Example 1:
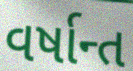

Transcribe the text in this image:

વર્ષાન્ત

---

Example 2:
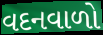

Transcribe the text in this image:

વદનવાળો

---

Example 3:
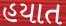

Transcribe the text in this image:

હયાત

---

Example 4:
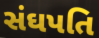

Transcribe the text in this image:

સંઘપતિ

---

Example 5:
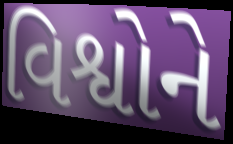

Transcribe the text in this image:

વિશ્વોને